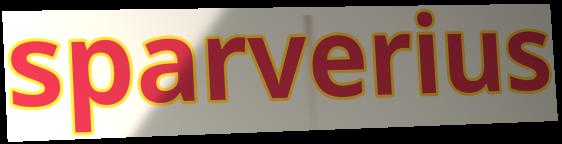
sparverius